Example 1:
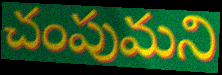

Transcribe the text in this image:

చంపుమని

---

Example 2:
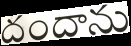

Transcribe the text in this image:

దందాను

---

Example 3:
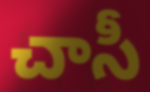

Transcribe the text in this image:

చాసీ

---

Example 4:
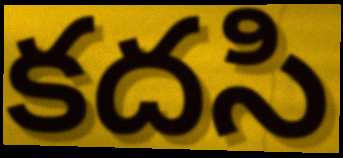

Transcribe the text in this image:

కదసి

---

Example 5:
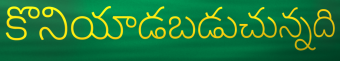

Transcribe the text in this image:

కొనియాడబడుచున్నది